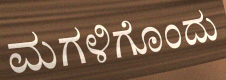
ಮಗಳಿಗೊಂದು